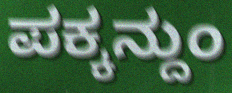
ಪಕ್ಕನ್ದುಂ